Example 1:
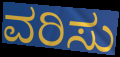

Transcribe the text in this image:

ವರಿಸು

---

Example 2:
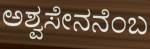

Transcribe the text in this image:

ಅಶ್ವಸೇನನೆಂಬ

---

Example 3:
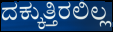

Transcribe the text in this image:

ದಕ್ಕುತ್ತಿರಲಿಲ್ಲ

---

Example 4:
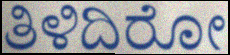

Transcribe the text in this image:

ತಿಳಿದಿರೋ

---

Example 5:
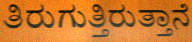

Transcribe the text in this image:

ತಿರುಗುತ್ತಿರುತ್ತಾನೆ